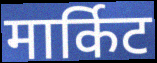
मार्किट